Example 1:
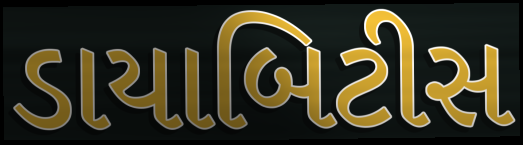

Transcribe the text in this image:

ડાયાબિટીસ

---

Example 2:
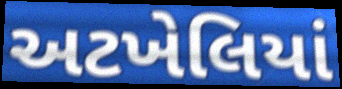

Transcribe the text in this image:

અટખેલિયાં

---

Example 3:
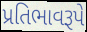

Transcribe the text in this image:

પ્રતિભાવરૂપે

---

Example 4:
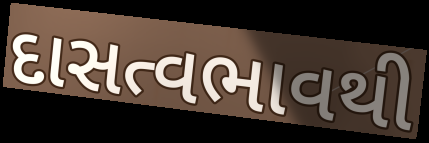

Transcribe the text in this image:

દાસત્વભાવથી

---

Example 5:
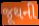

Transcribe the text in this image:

જૂથની